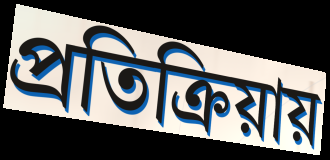
প্রতিক্রিয়ায়